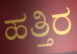
ಹತ್ತಿರ